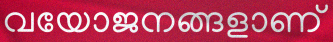
വയോജനങ്ങളാണ്